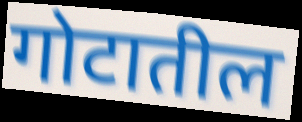
गोटातील